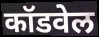
कॉडवेल